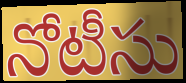
నోటీసు